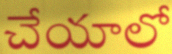
చేయాలో